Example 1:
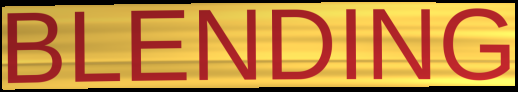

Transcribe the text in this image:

BLENDING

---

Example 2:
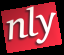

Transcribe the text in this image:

nly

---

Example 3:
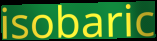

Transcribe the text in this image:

isobaric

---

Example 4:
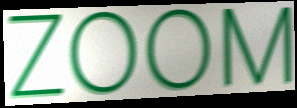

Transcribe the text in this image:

ZOOM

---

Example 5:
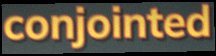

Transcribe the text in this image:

conjointed